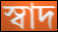
স্বাদ